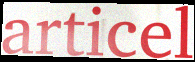
articel